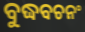
ବୁଦ୍ଧବଚନଂ